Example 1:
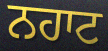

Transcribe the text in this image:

ਨਹਾਟ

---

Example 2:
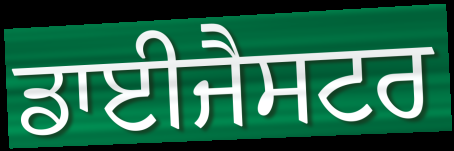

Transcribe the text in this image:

ਡਾਈਜੈਸਟਰ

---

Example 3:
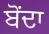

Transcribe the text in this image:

ਬੋੰਦਾ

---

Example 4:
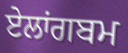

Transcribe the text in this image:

ਏਲਾਂਗਬਮ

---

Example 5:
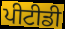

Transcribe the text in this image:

ਪੀਟੀਡੀ